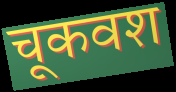
चूकवश